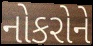
નોકરોને